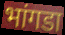
भांगडा